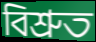
বিশ্রুত